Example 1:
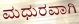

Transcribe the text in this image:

ಮಧುರವಾಗಿ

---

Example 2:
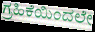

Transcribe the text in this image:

ಗ್ರಹಿಕೆಯಿಂದಲೇ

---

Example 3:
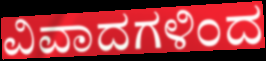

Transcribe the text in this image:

ವಿವಾದಗಳಿಂದ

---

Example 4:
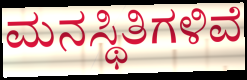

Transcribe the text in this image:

ಮನಸ್ಥಿತಿಗಳಿವೆ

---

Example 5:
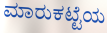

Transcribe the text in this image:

ಮಾರುಕಟ್ಟೆಯ